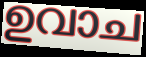
ഉവാച